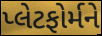
પ્લેટફોર્મને